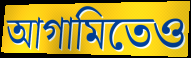
আগামিতেও